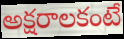
అక్షరాలకంటే